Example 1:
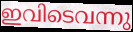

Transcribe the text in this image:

ഇവിടെവന്നു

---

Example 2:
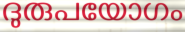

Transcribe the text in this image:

ദുരുപയോഗം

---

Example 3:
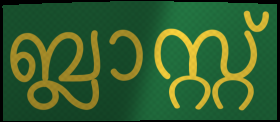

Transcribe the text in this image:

ബ്ലാസ്റ്റ്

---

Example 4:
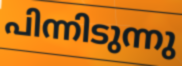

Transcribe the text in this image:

പിന്നിടുന്നു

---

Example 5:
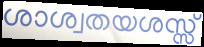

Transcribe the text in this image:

ശാശ്വതയശസ്സ്